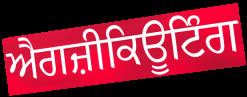
ਐਗਜ਼ੀਕਿਊਟਿੰਗ